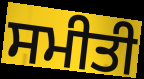
ਸਮੀਤੀ